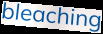
bleaching